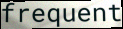
frequent